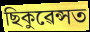
ছিকুৱেন্সত